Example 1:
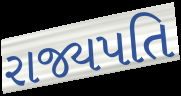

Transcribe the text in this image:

રાજ્યપતિ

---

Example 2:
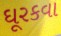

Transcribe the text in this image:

ઘૂરકવા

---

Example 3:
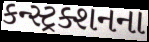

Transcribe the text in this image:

કન્સ્ટ્રક્શનના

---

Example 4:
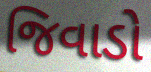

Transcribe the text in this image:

જિવાડો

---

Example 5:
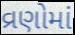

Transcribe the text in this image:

વ્રણોમાં